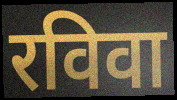
रविवा